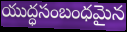
యుద్ధసంబంధమైన